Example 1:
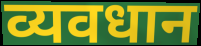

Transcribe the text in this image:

व्यवधान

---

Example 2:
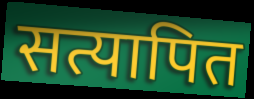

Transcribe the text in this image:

सत्यापित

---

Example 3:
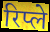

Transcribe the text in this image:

रिप्ले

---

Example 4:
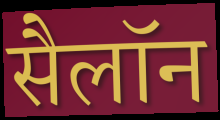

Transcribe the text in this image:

सैलॉन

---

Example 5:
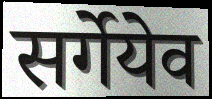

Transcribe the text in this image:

सर्गेयेव